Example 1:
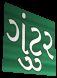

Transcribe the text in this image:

ગુંટુર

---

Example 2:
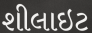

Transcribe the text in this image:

શીલાઇટ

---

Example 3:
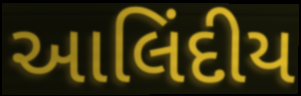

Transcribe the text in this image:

આલિંદીય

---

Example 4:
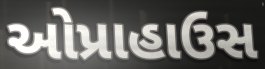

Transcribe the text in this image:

ઓપ્રાહાઉસ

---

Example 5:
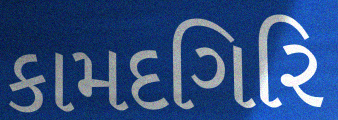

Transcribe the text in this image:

કામદગિરિ